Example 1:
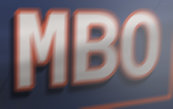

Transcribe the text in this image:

MBO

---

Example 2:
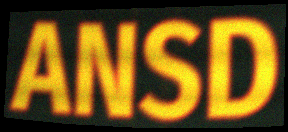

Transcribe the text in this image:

ANSD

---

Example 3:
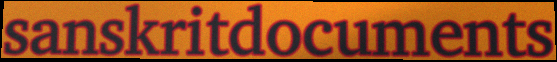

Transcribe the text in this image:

sanskritdocuments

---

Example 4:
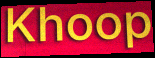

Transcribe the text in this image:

Khoop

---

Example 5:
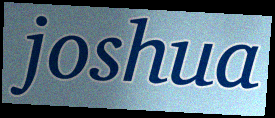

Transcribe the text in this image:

joshua